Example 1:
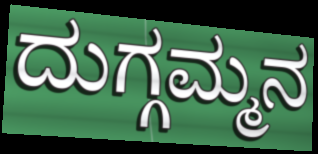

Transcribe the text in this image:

ದುಗ್ಗಮ್ಮನ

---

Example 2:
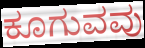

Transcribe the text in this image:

ಕೂಗುವವು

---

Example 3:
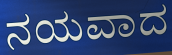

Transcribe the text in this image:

ನಯವಾದ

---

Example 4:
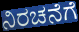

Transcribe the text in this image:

ನಿರಚನೆಗೆ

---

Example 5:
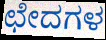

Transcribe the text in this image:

ಛೇದಗಳ